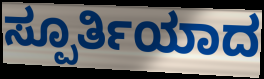
ಸ್ಪೂರ್ತಿಯಾದ